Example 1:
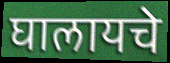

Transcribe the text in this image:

घालायचे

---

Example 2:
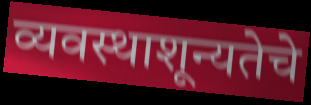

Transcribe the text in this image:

व्यवस्थाशून्यतेचे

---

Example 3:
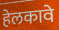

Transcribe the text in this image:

हेलकावे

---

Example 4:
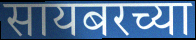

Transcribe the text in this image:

सायबरच्या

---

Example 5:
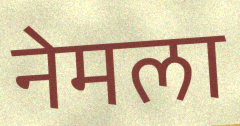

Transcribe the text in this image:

नेमला